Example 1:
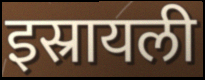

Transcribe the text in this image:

इस्रायली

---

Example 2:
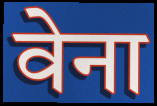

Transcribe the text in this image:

वेना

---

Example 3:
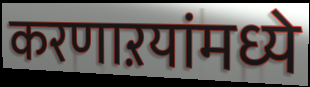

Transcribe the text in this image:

करणाऱयांमध्ये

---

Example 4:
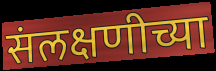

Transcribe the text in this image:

संलक्षणीच्या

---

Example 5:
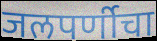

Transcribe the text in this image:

जलपर्णीचा